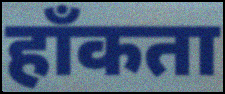
हाँकता